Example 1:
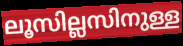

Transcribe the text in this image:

ലൂസില്ലസിനുള്ള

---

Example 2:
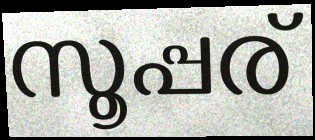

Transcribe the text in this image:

സൂപ്പര്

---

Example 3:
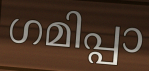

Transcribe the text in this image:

ഗമിപ്പാ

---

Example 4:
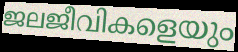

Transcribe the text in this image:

ജലജീവികളെയും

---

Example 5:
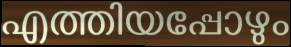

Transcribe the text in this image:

എത്തിയപ്പോഴും